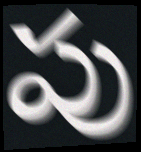
పు